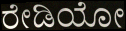
ರೇಡಿಯೋ